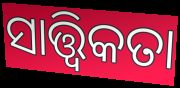
ସାତ୍ତ୍ଵିକତା